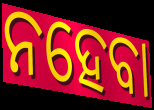
ନହେବା